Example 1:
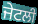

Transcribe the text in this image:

ਜੇਟਲੀ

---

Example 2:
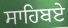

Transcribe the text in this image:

ਸਾਹਿਬਏ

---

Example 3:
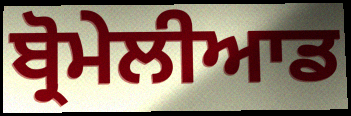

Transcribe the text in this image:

ਬ੍ਰੋਮੇਲੀਆਡ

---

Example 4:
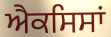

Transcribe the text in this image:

ਐਕਸਿਸਾਂ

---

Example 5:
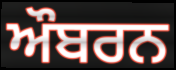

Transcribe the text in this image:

ਔਬਰਨ